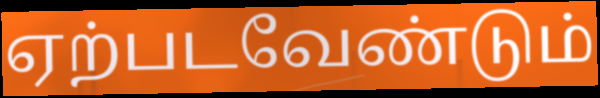
ஏற்படவேண்டும்